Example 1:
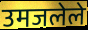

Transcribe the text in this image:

उमजलेले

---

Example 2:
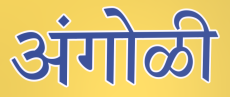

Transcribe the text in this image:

अंगोळी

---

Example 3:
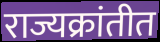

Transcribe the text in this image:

राज्यक्रांतीत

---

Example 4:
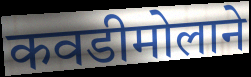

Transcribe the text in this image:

कवडीमोलाने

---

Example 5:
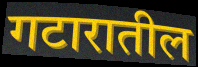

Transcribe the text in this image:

गटारातील